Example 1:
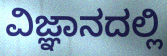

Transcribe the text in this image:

ವಿಜ್ಞಾನದಲ್ಲಿ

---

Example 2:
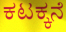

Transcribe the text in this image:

ಕಟಕ್ಕನೆ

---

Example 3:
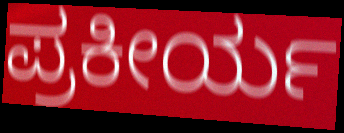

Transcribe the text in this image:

ಪ್ರಕೀರ್ಯ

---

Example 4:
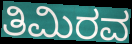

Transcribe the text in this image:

ತಿಮಿರವ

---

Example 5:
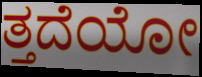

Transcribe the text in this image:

ತ್ತದೆಯೋ